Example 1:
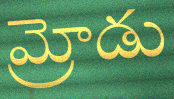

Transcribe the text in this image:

మ్రోడు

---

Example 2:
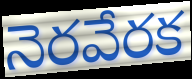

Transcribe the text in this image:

నెరవేరక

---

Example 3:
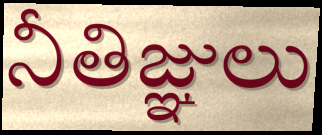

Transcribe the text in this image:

నీతిజ్ఞులు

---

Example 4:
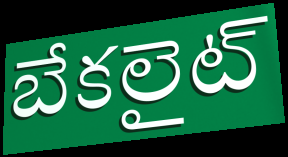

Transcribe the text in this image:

బేకలైట్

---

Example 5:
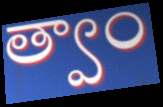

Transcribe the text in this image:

త్వాం